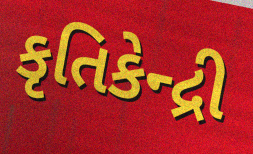
કૃતિકેન્દ્રી